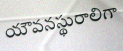
యౌవనస్థురాలిగా